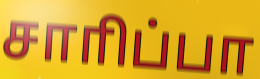
சாரிப்பா